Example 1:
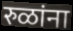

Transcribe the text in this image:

रुळांना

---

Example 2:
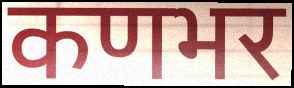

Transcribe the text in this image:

कणभर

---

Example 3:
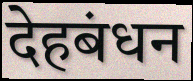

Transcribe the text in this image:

देहबंधन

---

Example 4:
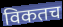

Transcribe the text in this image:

विकतच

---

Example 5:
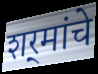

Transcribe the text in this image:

शर्मांचे